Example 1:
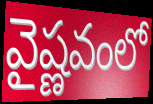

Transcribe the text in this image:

వైష్ణవంలో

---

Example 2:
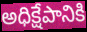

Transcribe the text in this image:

అధిక్షేపానికి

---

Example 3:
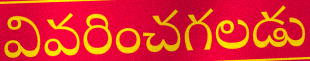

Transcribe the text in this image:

వివరించగలడు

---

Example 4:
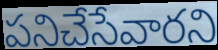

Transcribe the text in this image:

పనిచేసేవారని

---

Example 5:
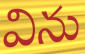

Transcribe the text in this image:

విను